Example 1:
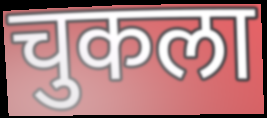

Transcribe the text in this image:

चुकला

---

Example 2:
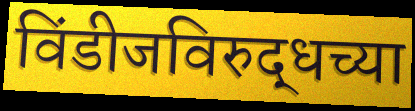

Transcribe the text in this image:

विंडीजविरुद्धच्या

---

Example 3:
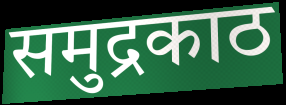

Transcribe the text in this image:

समुद्रकाठ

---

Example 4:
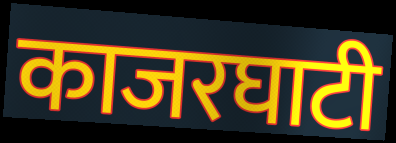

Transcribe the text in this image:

काजरघाटी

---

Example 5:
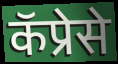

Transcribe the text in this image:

कॅप्रेसे